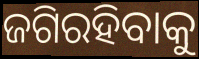
ଜଗିରହିବାକୁ